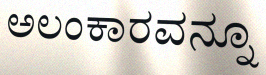
ಅಲಂಕಾರವನ್ನೂ